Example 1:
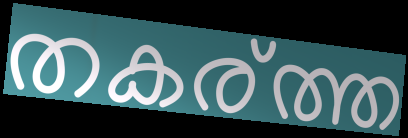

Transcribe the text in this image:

തകര്ത്ത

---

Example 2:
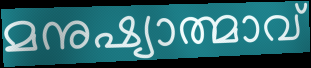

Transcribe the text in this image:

മനുഷ്യാത്മാവ്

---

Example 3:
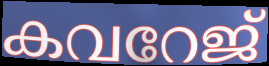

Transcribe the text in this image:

കവറേജ്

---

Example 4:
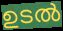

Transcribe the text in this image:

ഉടൽ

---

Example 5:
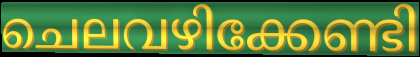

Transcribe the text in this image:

ചെലവഴിക്കേണ്ടി